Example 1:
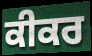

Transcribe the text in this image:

ਕੀਕਰ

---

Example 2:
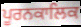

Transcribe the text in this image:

ਪੂਰਨਕਾਲਿਕ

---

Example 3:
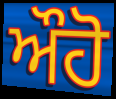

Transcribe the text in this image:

ਔਹੋ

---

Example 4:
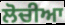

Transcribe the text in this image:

ਲੋਚੀਆ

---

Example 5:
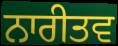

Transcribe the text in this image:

ਨਾਰੀਤਵ